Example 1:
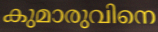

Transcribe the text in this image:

കുമാരുവിനെ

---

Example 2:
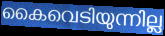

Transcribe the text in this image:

കൈവെടിയുന്നില്ല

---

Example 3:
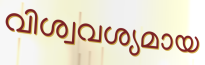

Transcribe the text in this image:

വിശ്വവശ്യമായ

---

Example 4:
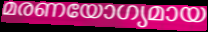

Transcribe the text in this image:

മരണയോഗ്യമായ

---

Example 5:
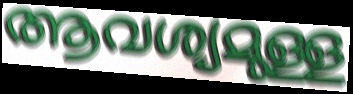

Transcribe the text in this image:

ആവശ്യമുള്ള